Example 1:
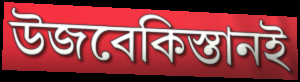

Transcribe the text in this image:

উজবেকিস্তানই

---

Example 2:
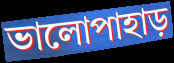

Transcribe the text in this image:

ভালোপাহাড়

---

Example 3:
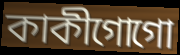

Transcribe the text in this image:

কাকীগোগো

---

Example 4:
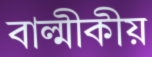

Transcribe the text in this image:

বাল্মীকীয়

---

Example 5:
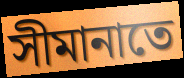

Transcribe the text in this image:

সীমানাতে